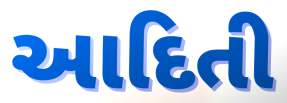
આદિતી